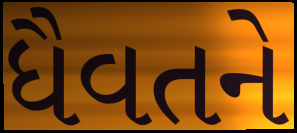
ધૈવતને